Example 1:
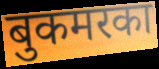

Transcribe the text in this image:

बुकमरका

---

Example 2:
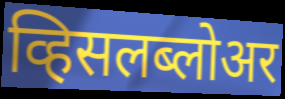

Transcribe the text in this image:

व्हिसलब्लोअर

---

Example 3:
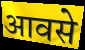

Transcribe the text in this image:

आवसे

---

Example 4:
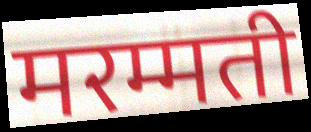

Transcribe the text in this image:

मरम्मती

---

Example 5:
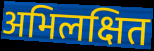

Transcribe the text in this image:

अभिलक्षित